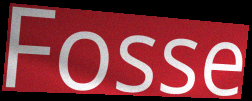
Fosse